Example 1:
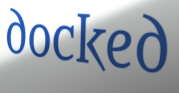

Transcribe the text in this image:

docked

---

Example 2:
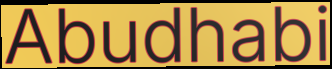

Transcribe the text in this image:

Abudhabi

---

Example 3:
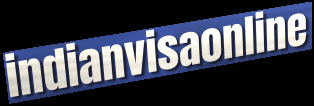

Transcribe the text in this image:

indianvisaonline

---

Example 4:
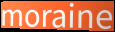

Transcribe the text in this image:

moraine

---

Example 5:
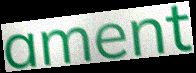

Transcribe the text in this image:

ament